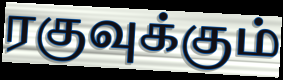
ரகுவுக்கும்